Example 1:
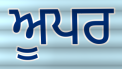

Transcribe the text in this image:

ਅੂਪਰ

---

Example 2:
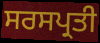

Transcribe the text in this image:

ਸਰਸਪ੍ਰਤੀ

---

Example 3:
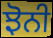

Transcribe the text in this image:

ਝੋਨੀ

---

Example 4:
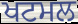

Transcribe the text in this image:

ਖਟਮਲ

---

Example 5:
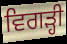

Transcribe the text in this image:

ਵਿਗੜ੍ਹੀ